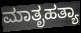
ಮಾತೃಹತ್ಯಾ